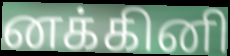
னக்கினி